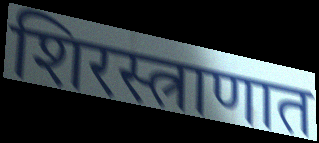
शिरस्त्राणात